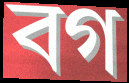
বগ